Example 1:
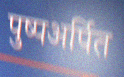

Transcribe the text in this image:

पुष्पअर्पित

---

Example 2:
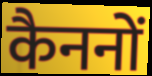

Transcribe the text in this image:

कैननों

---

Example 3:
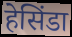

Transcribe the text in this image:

हेसिंडा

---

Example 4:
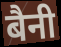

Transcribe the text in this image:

बैनी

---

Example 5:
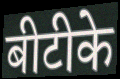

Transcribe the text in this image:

बीटीके